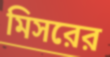
মিসরের